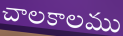
చాలకాలము